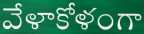
వేళాకోళంగా